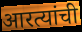
आरत्यांची